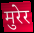
मुरेर